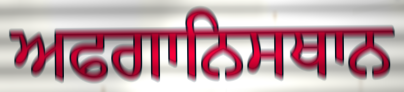
ਅਫਗਾਨਿਸਥਾਨ